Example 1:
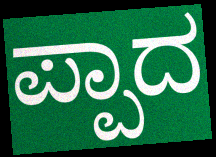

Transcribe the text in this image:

ಪ್ಪಾದ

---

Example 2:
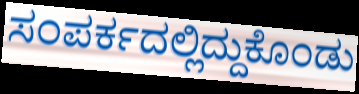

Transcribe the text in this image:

ಸಂಪರ್ಕದಲ್ಲಿದ್ದುಕೊಂಡು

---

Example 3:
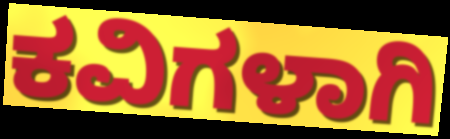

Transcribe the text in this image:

ಕವಿಗಳಾಗಿ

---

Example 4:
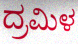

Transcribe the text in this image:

ದ್ರಮಿಳ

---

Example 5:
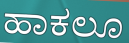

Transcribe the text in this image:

ಹಾಕಲೂ